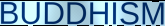
BUDDHISM